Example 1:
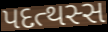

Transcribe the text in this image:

પદત્થસ્સ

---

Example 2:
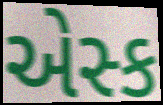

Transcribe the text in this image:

એસ્ક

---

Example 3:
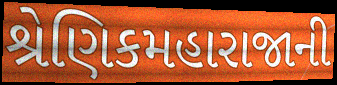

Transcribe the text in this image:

શ્રેણિકમહારાજાની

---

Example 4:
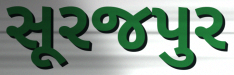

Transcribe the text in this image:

સૂરજપુર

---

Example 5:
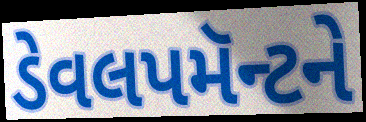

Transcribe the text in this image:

ડેવલપમૅન્ટને